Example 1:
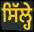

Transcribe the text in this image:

ਸਿੱਲ੍ਹੇ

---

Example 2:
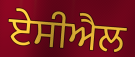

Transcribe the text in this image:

ਏਸੀਐਲ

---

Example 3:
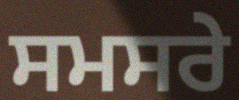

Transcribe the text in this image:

ਸਮਸਰੇ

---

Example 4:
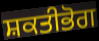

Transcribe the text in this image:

ਸ਼ਕਤੀਭੋਗ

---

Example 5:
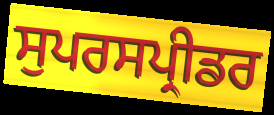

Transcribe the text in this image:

ਸੁਪਰਸਪ੍ਰੀਡਰ